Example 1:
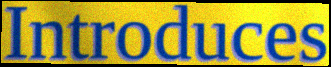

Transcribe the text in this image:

Introduces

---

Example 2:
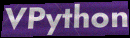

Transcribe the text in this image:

VPython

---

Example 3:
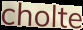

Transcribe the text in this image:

cholte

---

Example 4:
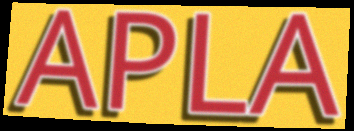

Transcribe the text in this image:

APLA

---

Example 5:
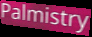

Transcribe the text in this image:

Palmistry